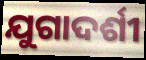
ଯୁଗାଦର୍ଶୀ